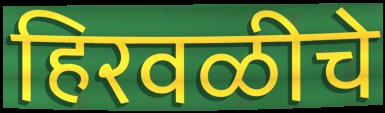
हिरवळीचे